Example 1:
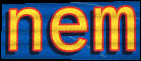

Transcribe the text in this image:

nem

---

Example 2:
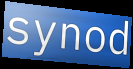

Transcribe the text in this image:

synod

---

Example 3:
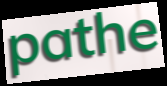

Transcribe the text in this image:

pathe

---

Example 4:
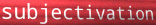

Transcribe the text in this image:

subjectivation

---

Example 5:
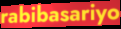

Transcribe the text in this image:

rabibasariyo